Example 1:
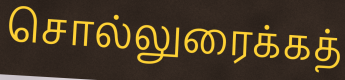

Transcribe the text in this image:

சொல்லுரைக்கத்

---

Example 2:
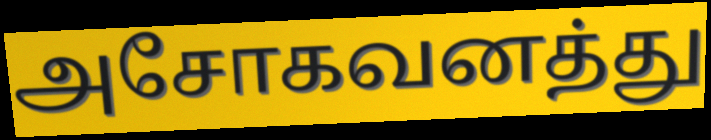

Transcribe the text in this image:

அசோகவனத்து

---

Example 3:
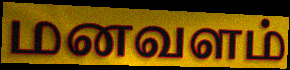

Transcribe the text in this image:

மனவளம்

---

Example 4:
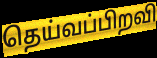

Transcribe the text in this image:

தெய்வப்பிறவி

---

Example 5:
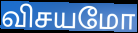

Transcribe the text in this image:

விசயமோ